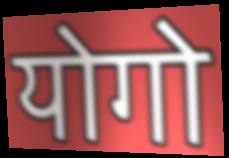
योगो